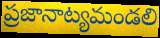
ప్రజానాట్యమండలి